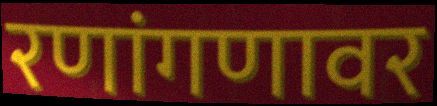
रणांगणावर